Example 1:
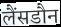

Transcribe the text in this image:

लैंसडौन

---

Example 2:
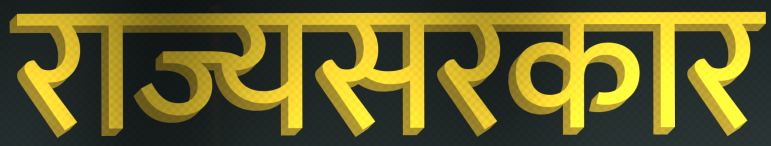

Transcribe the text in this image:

राज्यसरकार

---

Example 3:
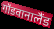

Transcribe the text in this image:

गोंडवानालैंड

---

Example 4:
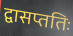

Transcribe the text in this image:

द्वासप्ततिः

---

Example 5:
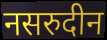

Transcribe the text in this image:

नसरुदीन